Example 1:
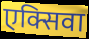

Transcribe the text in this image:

एक्सिवा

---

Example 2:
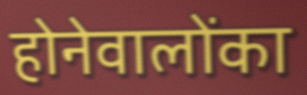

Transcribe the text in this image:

होनेवालोंका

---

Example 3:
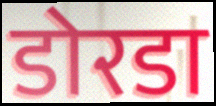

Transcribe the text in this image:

डोरडा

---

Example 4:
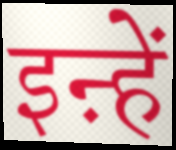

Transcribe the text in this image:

इऩ्हें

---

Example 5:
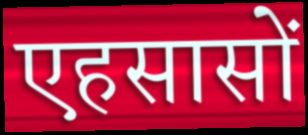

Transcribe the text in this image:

एहसासों